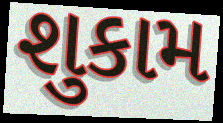
શુકામ